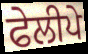
ਫੇਲੀਪੇ